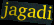
jagadi